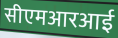
सीएमआरआई